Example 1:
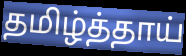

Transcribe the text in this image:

தமிழ்த்தாய்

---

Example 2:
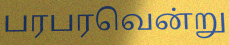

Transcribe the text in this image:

பரபரவென்று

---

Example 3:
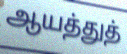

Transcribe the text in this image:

ஆயத்துத்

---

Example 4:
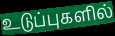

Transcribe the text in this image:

உடுப்புகளில்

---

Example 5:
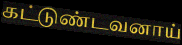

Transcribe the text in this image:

கட்டுண்டவனாய்